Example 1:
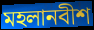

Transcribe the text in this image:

মহলানবীশ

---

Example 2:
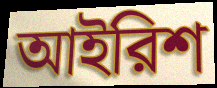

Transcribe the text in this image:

আইরিশ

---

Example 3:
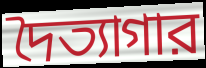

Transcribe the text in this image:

দৈত্যাগার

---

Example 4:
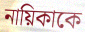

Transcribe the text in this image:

নায়িকাকে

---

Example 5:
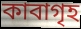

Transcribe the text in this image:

কাবাগৃহ